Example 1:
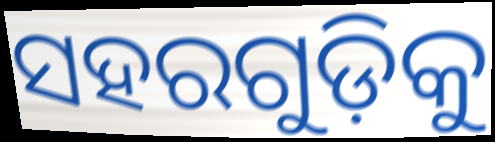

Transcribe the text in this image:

ସହରଗୁଡ଼ିକୁ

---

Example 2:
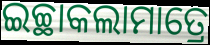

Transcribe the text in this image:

ଇଚ୍ଛାକଲାମାତ୍ରେ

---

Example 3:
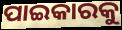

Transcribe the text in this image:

ପାଇକାରକୁ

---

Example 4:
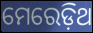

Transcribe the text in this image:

ମେରେଡ଼ିଥ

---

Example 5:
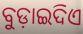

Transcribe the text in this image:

ବୁଡ଼ାଇଦିଏ